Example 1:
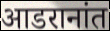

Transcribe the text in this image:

आडरानांत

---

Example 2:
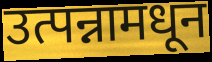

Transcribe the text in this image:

उत्पन्नामधून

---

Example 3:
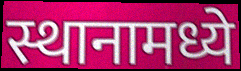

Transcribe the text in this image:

स्थानामध्ये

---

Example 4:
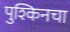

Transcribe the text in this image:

पुश्किनचा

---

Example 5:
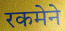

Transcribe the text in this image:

रकमेने